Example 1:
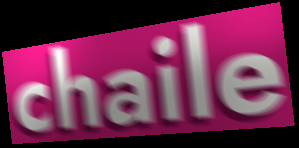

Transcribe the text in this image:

chaile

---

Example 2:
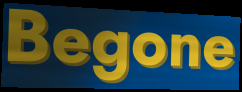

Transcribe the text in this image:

Begone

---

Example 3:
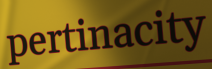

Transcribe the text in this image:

pertinacity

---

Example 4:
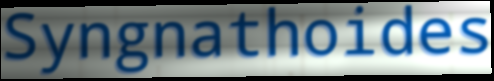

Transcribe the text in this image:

Syngnathoides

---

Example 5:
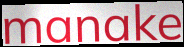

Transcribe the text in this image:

manake